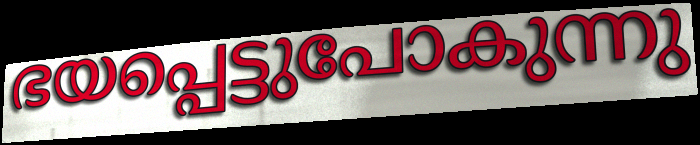
ഭയപ്പെട്ടുപോകുന്നു